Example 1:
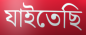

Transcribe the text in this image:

যাইতেছি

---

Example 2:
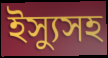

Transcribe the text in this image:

ইস্যুসহ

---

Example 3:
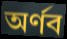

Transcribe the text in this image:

অর্ণব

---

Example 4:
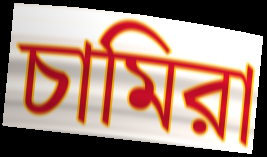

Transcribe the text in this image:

চামিরা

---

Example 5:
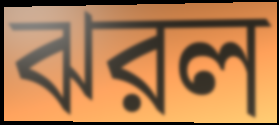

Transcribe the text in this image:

ঝরল